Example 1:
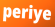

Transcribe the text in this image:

periye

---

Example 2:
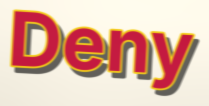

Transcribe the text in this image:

Deny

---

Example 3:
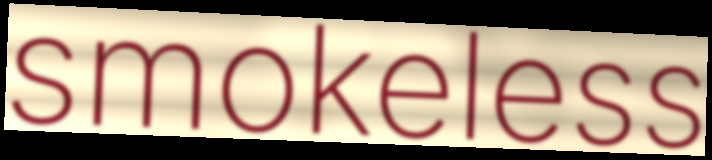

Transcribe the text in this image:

smokeless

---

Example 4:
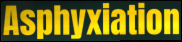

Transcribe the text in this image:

Asphyxiation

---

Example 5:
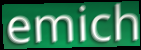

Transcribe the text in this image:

emich